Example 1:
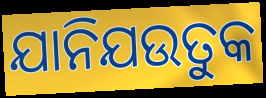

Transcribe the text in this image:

ଯାନିଯଉତୁକ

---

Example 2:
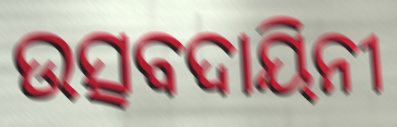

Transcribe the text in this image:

ଉତ୍ସବଦାୟିନୀ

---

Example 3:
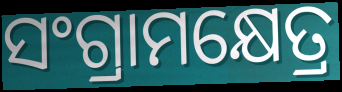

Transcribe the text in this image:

ସଂଗ୍ରାମକ୍ଷେତ୍ର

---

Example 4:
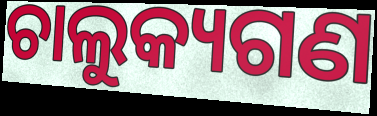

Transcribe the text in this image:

ଚାଲୁକ୍ୟଗଣ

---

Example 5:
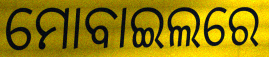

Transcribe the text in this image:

ମୋବାଇଲରେ